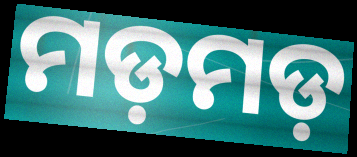
ମଡ଼ମଡ଼